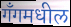
गँगमधील